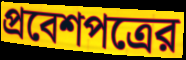
প্রবেশপত্রের